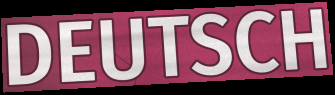
DEUTSCH